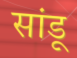
सांडू